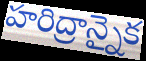
హరిద్రాన్నైక